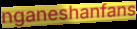
nganeshanfans